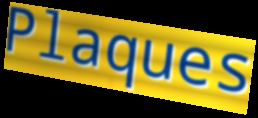
Plaques